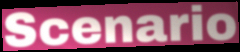
Scenario